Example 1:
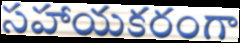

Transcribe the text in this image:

సహాయకరంగా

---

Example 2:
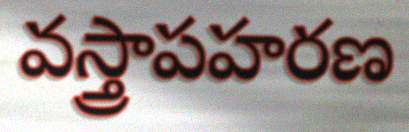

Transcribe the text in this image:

వస్త్రాపహరణ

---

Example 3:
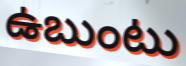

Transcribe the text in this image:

ఉబుంటు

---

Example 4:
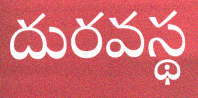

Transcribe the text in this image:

దురవస్థ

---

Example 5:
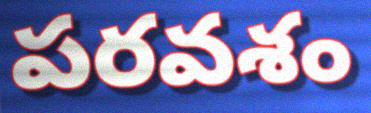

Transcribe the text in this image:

పరవశం